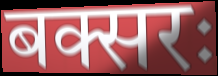
बक्सरः